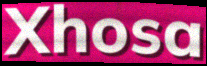
Xhosa